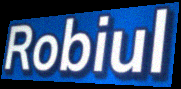
Robiul